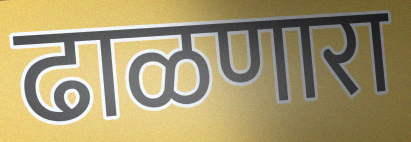
ढाळणारा